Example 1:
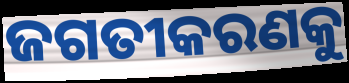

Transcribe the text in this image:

ଜଗତୀକରଣକୁ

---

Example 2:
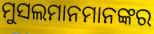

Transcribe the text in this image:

ମୁସଲମାନମାନଙ୍କର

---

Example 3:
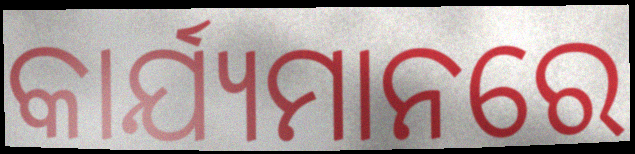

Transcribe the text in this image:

କାର୍ଯ୍ୟମାନରେ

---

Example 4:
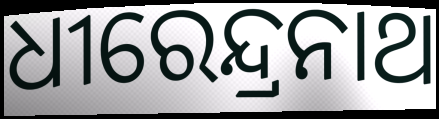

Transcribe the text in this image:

ଧୀରେନ୍ଦ୍ରନାଥ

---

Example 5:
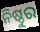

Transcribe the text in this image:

ନିଷ୍ଠୁର